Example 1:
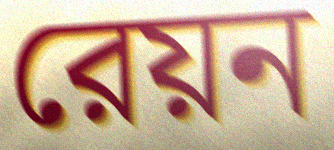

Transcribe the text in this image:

রেয়ন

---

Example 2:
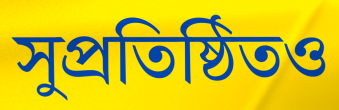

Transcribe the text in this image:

সুপ্রতিষ্ঠিতও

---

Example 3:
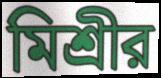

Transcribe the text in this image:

মিশ্রীর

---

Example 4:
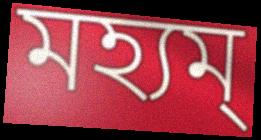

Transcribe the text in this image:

মহ্যম্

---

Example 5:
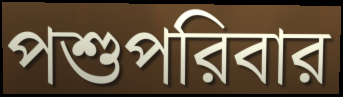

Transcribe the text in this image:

পশুপরিবার